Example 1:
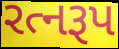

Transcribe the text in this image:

રત્નરૂપ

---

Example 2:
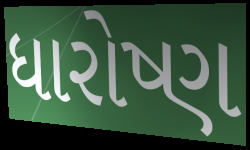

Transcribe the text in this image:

ધારોષ્ણ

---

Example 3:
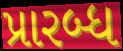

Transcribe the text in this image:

પ્રારબ્ધ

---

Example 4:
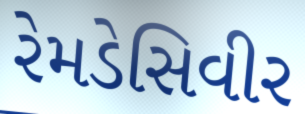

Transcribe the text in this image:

રેમડેસિવીર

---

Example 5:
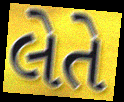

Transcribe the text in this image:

લેતે